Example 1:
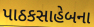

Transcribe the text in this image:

પાઠકસાહેબના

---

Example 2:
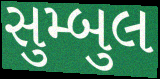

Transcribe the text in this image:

સુમ્બુલ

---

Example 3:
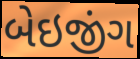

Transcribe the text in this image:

બેઇજીંગ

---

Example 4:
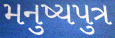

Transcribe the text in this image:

મનુષ્યપુત્ર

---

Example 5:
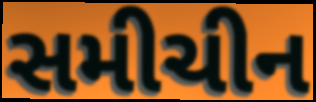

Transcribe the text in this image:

સમીચીન